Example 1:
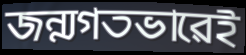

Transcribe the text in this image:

জন্মগতভাৱেই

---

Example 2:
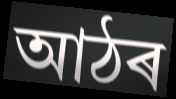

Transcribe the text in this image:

আঠৰ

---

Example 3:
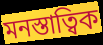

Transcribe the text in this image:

মনস্তাত্বিক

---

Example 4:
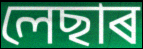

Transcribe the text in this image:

লেছাৰ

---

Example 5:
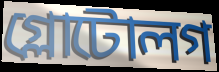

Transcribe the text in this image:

গ্লোটোলগ